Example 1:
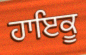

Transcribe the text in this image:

ਹਾਇਕੂ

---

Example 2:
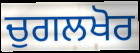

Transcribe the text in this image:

ਚੁਗਲਖੋਰ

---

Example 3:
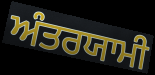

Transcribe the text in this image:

ਅੰਤਰਯਾਮੀ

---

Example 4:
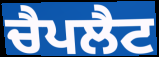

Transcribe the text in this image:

ਚੈਪਲੈਟ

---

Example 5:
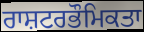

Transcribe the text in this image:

ਰਾਸ਼ਟਰਭੌਮਿਕਤਾ